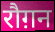
रौग़न